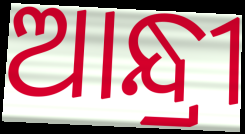
ଆନ୍ଧ୍ରୀ